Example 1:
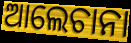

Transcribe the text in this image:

ଆଲେଚାନା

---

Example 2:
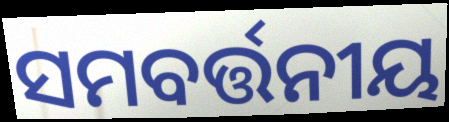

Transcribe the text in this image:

ସମବର୍ତ୍ତନୀୟ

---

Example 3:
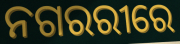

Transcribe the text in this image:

ନଗରରୀରେ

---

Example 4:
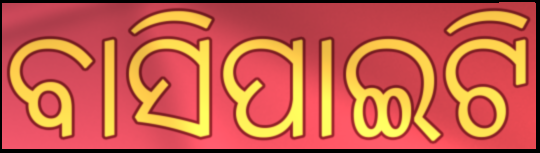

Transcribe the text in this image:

ବାସିପାଇଟି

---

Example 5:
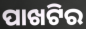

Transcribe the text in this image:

ପାଖଟିର